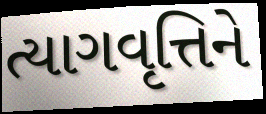
ત્યાગવૃત્તિને